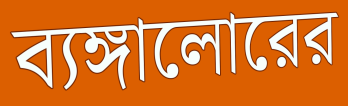
ব্যঙ্গালোরের